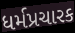
ધર્મપ્રચારક